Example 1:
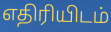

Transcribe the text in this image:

எதிரியிடம்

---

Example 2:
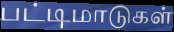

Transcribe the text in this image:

பட்டிமாடுகள்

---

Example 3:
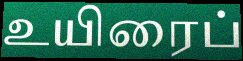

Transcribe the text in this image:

உயிரைப்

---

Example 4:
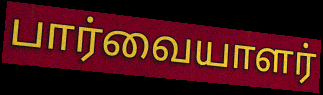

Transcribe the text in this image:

பார்வையாளர்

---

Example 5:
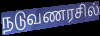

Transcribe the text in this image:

நடுவணரசில்